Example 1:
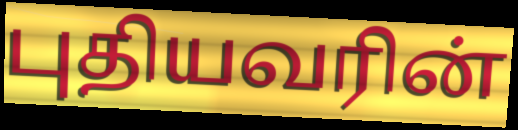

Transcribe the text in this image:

புதியவரின்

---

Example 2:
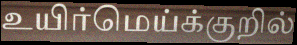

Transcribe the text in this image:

உயிர்மெய்க்குறில்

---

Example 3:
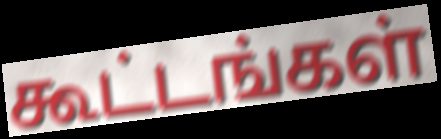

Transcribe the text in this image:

கூட்டங்கள்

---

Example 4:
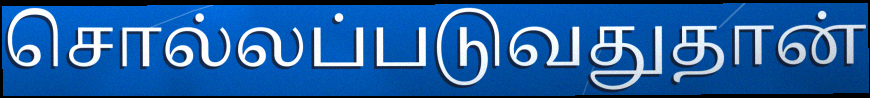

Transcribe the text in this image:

சொல்லப்படுவதுதான்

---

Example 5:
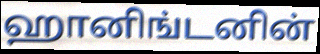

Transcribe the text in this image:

ஹானிங்டனின்